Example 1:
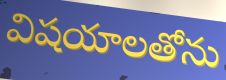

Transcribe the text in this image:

విషయాలతోను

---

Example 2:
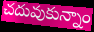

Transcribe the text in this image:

చదువుకున్నాం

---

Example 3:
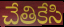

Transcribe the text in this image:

చేతికేసి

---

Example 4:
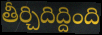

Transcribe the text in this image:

తీర్చిదిద్దింది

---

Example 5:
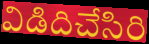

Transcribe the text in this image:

విడిదిచేసిరి